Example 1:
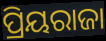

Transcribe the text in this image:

ପ୍ରିୟରାଜା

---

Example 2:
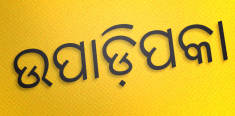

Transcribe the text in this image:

ଉପାଡ଼ିପକା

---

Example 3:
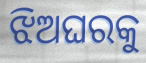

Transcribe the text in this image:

ଝିଅଘରକୁ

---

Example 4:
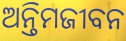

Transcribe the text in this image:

ଅନ୍ତିମଜୀବନ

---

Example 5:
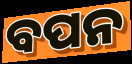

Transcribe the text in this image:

ବପନ